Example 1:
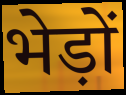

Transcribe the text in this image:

भेड़ों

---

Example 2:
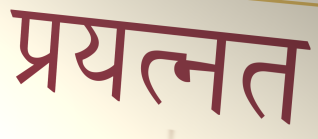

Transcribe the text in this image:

प्रयत्नत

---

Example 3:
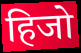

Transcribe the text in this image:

हिजो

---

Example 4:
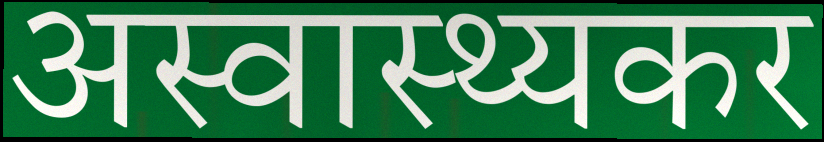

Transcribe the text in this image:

अस्वास्थ्यकर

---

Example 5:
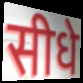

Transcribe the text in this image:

सीधे